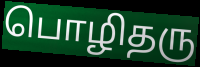
பொழிதரு